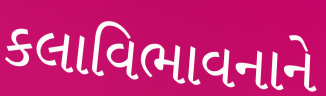
કલાવિભાવનાને